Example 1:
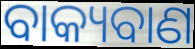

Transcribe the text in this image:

ବାକ୍ୟବାଣ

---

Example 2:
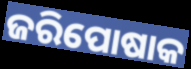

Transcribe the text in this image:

ଜରିପୋଷାକ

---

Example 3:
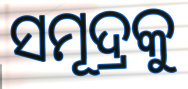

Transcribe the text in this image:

ସମୂଦ୍ରକୁ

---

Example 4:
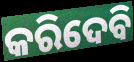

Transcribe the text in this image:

କରିଦେବି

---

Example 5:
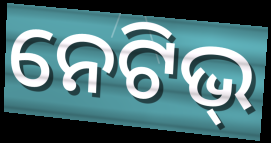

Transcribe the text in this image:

ନେଟିଭ୍